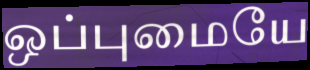
ஒப்புமையே